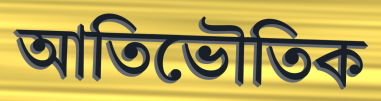
আতিভৌতিক